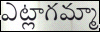
ఎట్లాగమ్మా